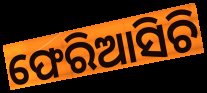
ଫେରିଆସିଚି